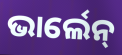
ଭାର୍ଲେନ୍